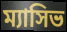
ম্যাসিভ